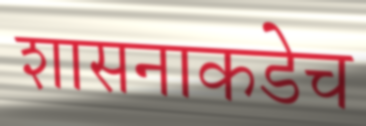
शासनाकडेच